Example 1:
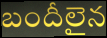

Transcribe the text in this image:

బందీలైన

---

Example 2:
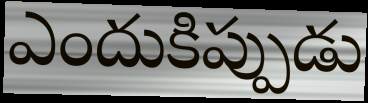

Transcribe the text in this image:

ఎందుకిప్పుడు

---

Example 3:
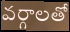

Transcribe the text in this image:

వర్గాలతో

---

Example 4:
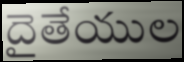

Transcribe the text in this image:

దైతేయుల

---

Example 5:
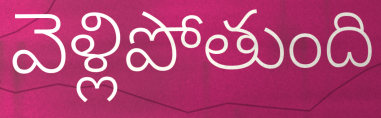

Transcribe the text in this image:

వెళ్లిపోతుంది